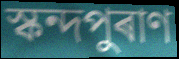
স্কন্দপুৰাণ